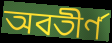
অবতীর্ণ